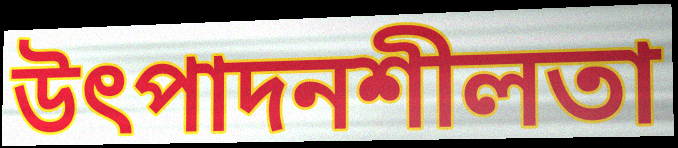
উৎপাদনশীলতা